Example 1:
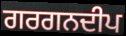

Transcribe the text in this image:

ਗਰਗਨਦੀਪ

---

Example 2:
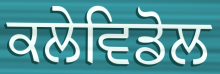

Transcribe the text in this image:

ਕਲੇਵਿਡੋਲ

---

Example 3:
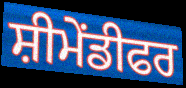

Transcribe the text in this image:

ਸ਼ੀਮੇਂਡੀਫਰ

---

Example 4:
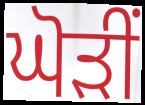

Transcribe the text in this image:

ਘੋੜੀਂ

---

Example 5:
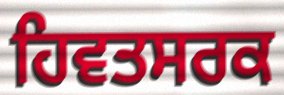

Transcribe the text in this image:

ਹਿਵਤਸਰਕ